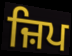
ਜ਼ਿਪ